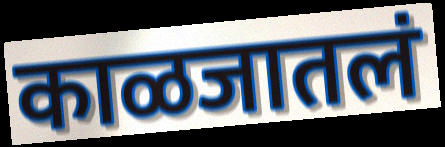
काळजातलं